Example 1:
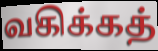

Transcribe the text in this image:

வகிக்கத்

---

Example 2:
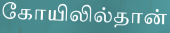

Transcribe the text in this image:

கோயிலில்தான்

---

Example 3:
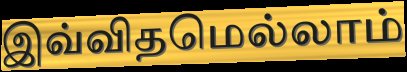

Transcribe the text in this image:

இவ்விதமெல்லாம்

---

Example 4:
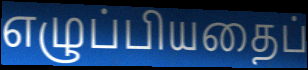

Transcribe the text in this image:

எழுப்பியதைப்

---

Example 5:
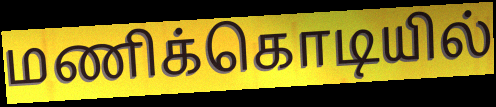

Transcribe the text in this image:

மணிக்கொடியில்